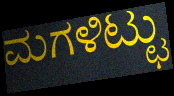
ಮಗಳಿಟ್ಟು